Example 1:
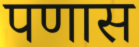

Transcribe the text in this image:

पणास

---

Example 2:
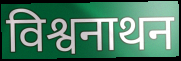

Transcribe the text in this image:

विश्वनाथन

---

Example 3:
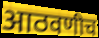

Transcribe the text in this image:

आठवणीच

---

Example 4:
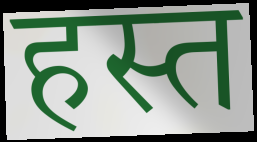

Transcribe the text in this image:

हस्त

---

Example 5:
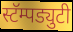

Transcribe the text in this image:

स्टॅम्पड्युटी